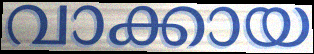
വാക്കായ